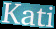
Kati